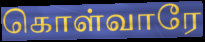
கொள்வாரே